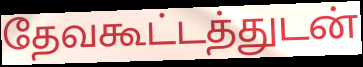
தேவகூட்டத்துடன்